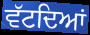
ਵੱਟਦਿਆਂ